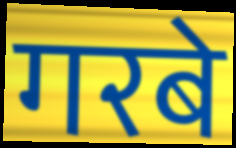
गरबे